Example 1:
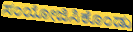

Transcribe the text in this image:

ಸಂಯೋಜಿಸಿಕೊಂಡು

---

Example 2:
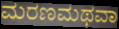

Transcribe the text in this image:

ಮರಣಮಥವಾ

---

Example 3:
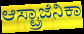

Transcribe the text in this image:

ಆಸ್ಟ್ರಾಜೆನಿಕಾ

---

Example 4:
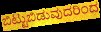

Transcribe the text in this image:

ಬಿಟ್ಟುಬಿಡುವುದರಿಂದ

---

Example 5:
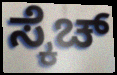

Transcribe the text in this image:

ಸ್ಕೆಚ್